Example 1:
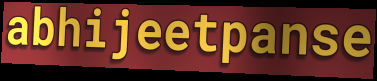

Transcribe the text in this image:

abhijeetpanse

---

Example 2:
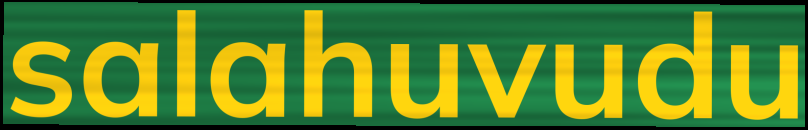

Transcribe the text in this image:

salahuvudu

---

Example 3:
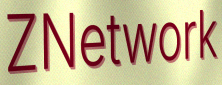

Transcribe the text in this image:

ZNetwork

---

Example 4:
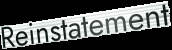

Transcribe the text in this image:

Reinstatement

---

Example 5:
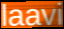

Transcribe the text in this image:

laavi